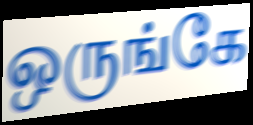
ஒருங்கே